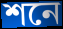
শনে